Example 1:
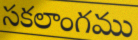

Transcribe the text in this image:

సకలాంగము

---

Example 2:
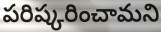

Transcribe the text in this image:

పరిష్కరించామని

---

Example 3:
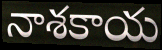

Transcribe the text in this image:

నాశకాయ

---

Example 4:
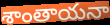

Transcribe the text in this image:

శాంతాయనా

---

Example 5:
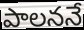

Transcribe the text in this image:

పాలననే